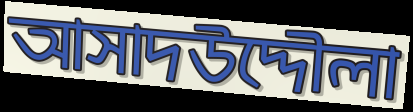
আসাদউদ্দৌলা